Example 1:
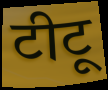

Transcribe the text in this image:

टीटू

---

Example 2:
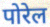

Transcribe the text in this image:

पोरेल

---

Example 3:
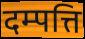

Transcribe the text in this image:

दम्पत्ति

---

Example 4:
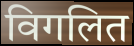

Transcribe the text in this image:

विगलित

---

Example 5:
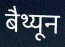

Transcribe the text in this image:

बैथ्यून